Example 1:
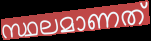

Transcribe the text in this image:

സ്ഥലമാണത്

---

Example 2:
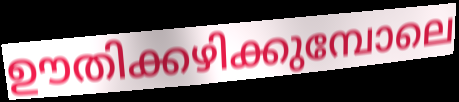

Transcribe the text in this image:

ഊതിക്കഴിക്കുമ്പോലെ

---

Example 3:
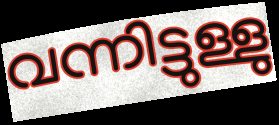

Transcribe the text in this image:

വന്നിട്ടുള്ളു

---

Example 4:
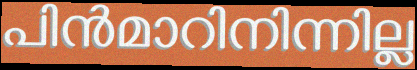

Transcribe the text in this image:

പിൻമാറിനിന്നില്ല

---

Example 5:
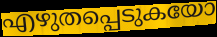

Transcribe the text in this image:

എഴുതപ്പെടുകയോ